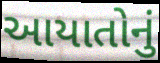
આયાતોનું